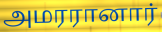
அமரரானார்